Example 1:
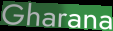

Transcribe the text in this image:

Gharana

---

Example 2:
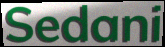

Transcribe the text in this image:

Sedani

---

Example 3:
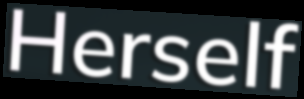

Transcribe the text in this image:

Herself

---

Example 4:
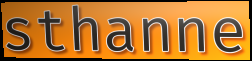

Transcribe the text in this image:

sthanne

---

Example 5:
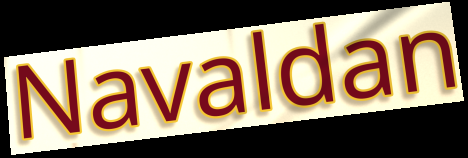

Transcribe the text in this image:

Navaldan